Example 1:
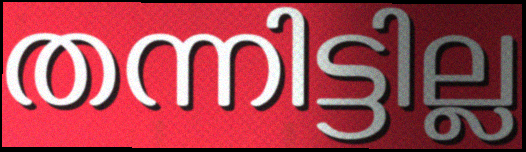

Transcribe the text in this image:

തന്നിട്ടില്ല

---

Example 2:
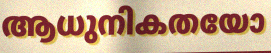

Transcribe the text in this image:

ആധുനികതയോ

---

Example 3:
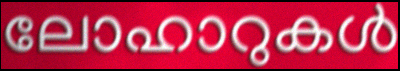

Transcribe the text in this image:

ലോഹാറുകൾ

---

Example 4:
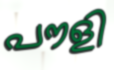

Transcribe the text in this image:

പൗളി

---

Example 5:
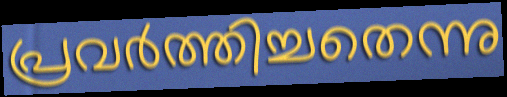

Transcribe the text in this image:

പ്രവർത്തിച്ചതെന്നു